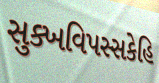
સુક્ખવિપસ્સકેહિ